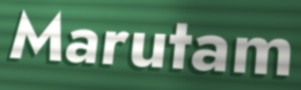
Marutam